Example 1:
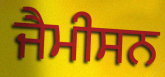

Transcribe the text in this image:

ਜੈਮੀਸਨ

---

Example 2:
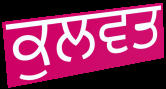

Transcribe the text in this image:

ਕੁਲਵਤ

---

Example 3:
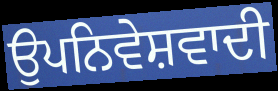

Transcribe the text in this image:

ਉਪਨਿਵੇਸ਼ਵਾਦੀ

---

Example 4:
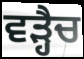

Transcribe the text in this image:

ਵੜ੍ਹੈਚ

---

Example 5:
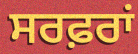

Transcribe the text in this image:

ਸਰਫ਼ਰਾਂ